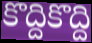
కొద్దికొద్ది